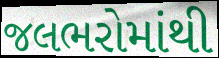
જલભરોમાંથી